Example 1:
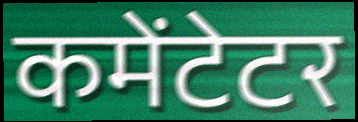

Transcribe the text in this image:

कमेंटेटर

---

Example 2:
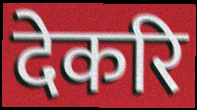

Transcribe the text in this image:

देकरि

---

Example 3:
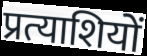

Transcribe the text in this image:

प्रत्‍याशियों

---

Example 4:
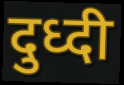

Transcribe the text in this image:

दुध्दी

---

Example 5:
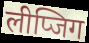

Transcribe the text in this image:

लीप्जिग